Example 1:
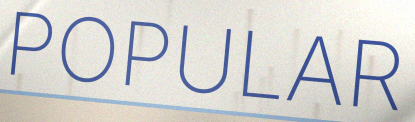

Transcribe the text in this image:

POPULAR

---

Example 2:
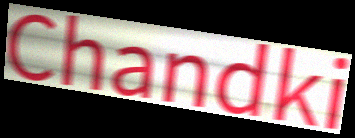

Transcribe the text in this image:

Chandki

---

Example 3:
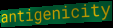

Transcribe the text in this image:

antigenicity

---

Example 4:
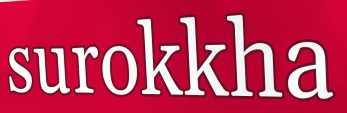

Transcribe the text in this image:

surokkha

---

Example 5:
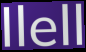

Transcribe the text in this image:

Ilell